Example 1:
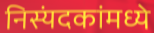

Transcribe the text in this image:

निस्यंदकांमध्ये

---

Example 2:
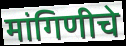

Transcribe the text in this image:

मांगिणीचे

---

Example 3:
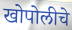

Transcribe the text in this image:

खोपोलीचे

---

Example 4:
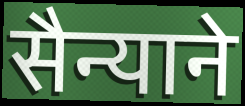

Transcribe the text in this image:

सैन्याने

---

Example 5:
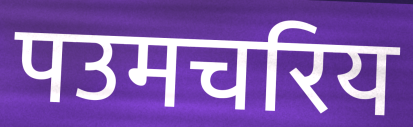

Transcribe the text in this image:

पउमचरिय